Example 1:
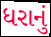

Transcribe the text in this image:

ધરાનું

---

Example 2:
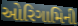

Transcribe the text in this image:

ઓરિગામિની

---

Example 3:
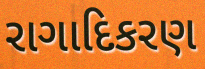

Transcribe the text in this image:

રાગાદિકરણ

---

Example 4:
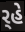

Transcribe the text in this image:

ર્‍હે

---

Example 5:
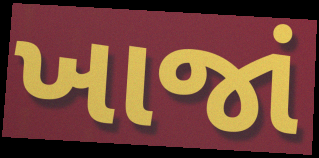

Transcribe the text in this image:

ખાજાં